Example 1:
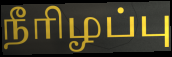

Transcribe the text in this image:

நீரிழப்பு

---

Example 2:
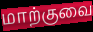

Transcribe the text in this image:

மாற்குவை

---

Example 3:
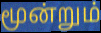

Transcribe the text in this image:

மூன்றும்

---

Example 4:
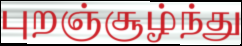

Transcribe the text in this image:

புறஞ்சூழ்ந்து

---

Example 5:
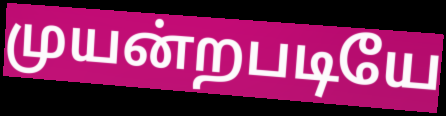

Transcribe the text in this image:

முயன்றபடியே